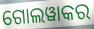
ଗୋଲୱାକର